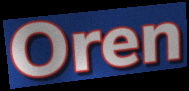
Oren